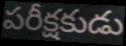
పరీక్షకుడు